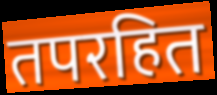
तपरहित